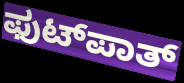
ಫುಟ್‍ಪಾತ್